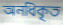
অনধিকৃত